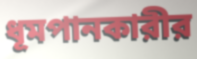
ধূমপানকারীর